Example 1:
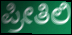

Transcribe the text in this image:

ಪ್ರೀತಿಲಿ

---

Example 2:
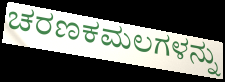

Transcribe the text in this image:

ಚರಣಕಮಲಗಳನ್ನು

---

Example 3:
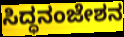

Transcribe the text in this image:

ಸಿದ್ಧನಂಜೇಶನ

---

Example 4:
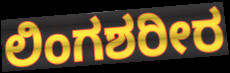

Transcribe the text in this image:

ಲಿಂಗಶರೀರ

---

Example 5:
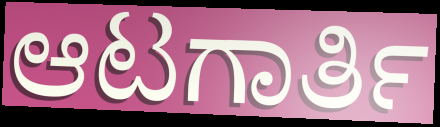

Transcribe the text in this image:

ಆಟಗಾರ್ತಿ